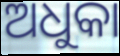
ଅଧୁକା